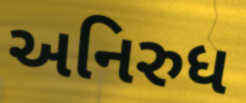
અનિરુધ